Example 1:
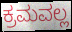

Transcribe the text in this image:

ಕ್ರಮವಲ್ಲ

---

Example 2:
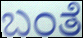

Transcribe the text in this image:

ಬಂತೆ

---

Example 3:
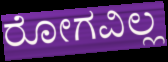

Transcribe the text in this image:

ರೋಗವಿಲ್ಲ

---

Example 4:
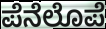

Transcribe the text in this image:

ಪೆನೆಲೊಪೆ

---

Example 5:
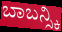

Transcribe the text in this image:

ಬಾಬನ್ಸ್ಕಿ